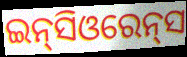
ଇନ୍‌ସିଓରେନ୍‌ସ